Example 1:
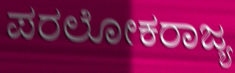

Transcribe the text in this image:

ಪರಲೋಕರಾಜ್ಯ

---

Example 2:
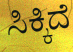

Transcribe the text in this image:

ಸಿಕ್ಕಿದೆ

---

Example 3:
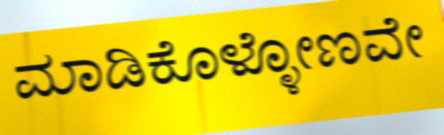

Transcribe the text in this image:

ಮಾಡಿಕೊಳ್ಳೋಣವೇ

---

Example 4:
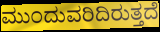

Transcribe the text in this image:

ಮುಂದುವರಿದಿರುತ್ತದೆ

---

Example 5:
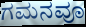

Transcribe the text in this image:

ಗಮನವೂ